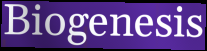
Biogenesis